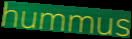
hummus